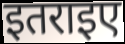
इतराइए